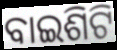
ବାଇଶିଟି